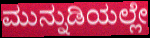
ಮುನ್ನುಡಿಯಲ್ಲೇ